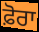
ਫ਼ੋਰਾ